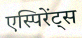
एस्पिरेंट्स